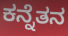
ಕನ್ನೆತನ